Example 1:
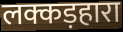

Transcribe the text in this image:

लक्कड़हारा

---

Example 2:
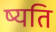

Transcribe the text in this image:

ष्यति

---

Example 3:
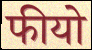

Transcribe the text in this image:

फीयो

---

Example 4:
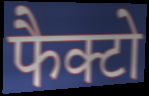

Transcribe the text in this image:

फैक्टो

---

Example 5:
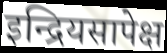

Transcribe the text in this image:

इन्द्रियसापेक्ष